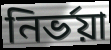
নির্ভয়া